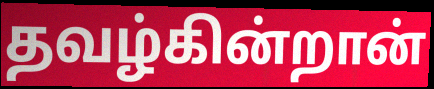
தவழ்கின்றான்